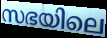
സഭയിലെ